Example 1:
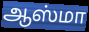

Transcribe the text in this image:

ஆஸ்மா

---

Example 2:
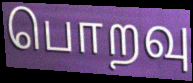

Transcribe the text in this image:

பொறவு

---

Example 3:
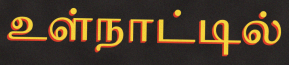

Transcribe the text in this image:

உள்நாட்டில்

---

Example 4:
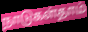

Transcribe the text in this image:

நாடுகள்தாம்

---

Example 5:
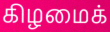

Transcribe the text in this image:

கிழமைக்